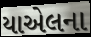
યાએલના